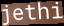
jethi